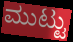
ಮುಟ್ಟು